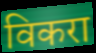
विकरा